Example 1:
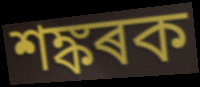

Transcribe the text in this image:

শঙ্কৰক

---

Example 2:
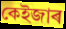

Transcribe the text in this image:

কেইজাৰ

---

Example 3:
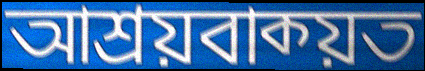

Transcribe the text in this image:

আশ্ৰয়বাক্য়ত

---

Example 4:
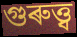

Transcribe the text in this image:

গুৰুত্ত্ব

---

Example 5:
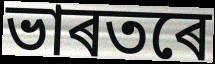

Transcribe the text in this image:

ভাৰতৰে